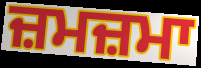
ਜ਼ਮਜ਼ਮਾ